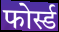
फोर्स्ड